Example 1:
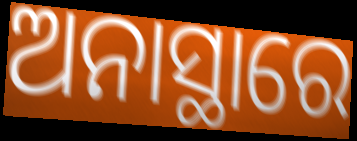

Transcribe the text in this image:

ଅନାସ୍ଥାରେ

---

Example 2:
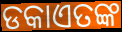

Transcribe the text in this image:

ଡକାଏତଙ୍କ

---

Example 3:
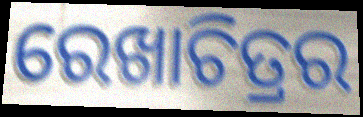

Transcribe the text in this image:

ରେଖାଚିତ୍ରର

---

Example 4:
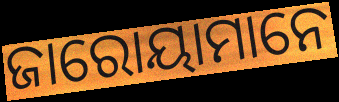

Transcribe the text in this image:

ଜାରୋୟାମାନେ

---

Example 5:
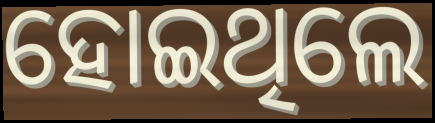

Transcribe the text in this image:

ହୋଇଥିଲେ